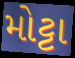
મોટ્ટા